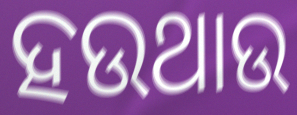
ହଉଥାଉ